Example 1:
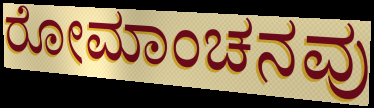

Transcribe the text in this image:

ರೋಮಾಂಚನವು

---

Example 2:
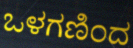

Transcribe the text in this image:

ಒಳಗಣಿಂದ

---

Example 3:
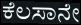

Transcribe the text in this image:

ಕೆಲಸಾನೇ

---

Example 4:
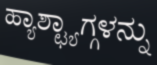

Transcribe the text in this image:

ಹ್ಯಾಶ್ಟ್ಯಾಗ್ಗಳನ್ನು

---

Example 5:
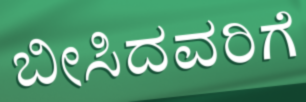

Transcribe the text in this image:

ಬೀಸಿದವರಿಗೆ